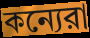
কন্যেরা